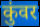
कुंवर